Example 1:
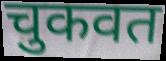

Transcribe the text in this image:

चुकवत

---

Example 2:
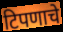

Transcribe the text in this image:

टिपणाचे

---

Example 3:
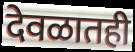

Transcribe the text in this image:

देवळातही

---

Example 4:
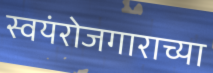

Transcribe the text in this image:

स्वयंरोजगाराच्या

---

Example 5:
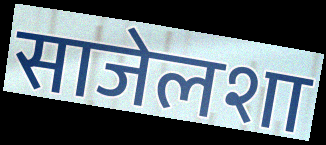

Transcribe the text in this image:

साजेलशा